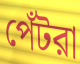
পেঁটরা